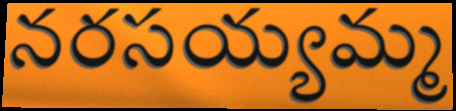
నరసయ్యమ్మ